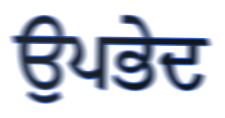
ਉਪਭੇਦ